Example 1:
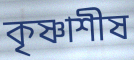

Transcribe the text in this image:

কৃষ্ণাশীষ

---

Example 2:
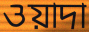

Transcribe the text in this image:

ওয়াদা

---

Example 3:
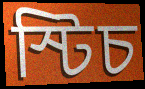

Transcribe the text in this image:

স্টিচ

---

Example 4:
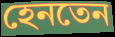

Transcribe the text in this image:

হেনতেন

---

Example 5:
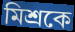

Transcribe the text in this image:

মিশ্রকে